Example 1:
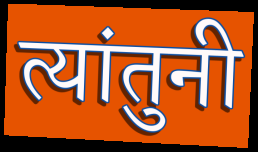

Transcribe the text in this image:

त्यांतुनी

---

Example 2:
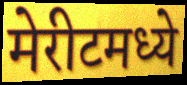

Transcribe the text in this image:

मेरीटमध्ये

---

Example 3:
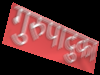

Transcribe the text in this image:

गुरुपादुका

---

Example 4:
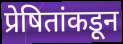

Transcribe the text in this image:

प्रेषितांकडून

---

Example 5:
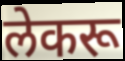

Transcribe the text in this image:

लेकरू